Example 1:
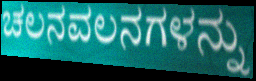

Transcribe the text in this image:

ಚಲನವಲನಗಳನ್ನು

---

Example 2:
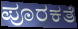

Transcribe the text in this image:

ಪೂರಕತೆ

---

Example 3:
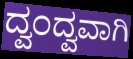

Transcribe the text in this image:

ದ್ವಂದ್ವವಾಗಿ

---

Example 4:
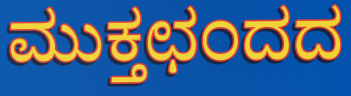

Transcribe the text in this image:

ಮುಕ್ತಛಂದದ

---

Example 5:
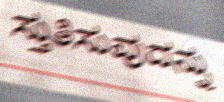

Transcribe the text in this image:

ಸ್ತುತಿಸುವುದನ್ನು